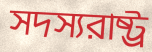
সদস্যরাষ্ট্র